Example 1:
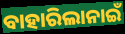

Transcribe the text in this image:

ବାହାରିଲାନାଇଁ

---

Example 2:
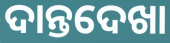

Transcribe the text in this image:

ଦାନ୍ତଦେଖା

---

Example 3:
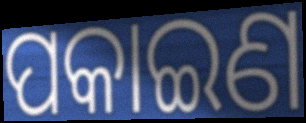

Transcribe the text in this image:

ପକାଇଣ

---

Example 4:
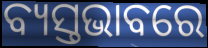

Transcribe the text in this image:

ବ୍ୟସ୍ତଭାବରେ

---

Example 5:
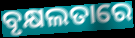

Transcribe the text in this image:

ବୃକ୍ଷଲତାରେ